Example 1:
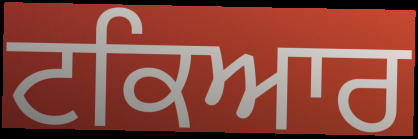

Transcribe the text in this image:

ਟਕਿਆਰ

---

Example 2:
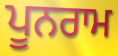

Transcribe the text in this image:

ਪੂਨਰਾਮ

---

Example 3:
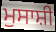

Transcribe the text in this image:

ਮੁਸਾਸ਼ੀ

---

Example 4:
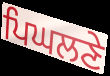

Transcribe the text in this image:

ਪਿਘਲਣੇ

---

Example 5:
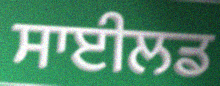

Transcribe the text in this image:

ਸਾਈਲਡ